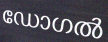
ഡോഗൽ